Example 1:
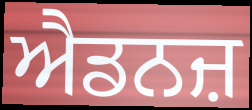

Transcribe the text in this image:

ਐਡਨਜ਼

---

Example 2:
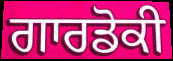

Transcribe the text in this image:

ਗਾਰਡੋਕੀ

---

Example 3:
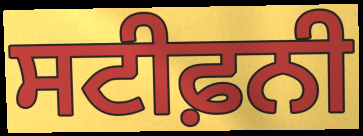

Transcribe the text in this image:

ਸਟੀਫ਼ਨੀ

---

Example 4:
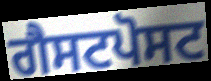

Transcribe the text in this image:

ਗੈਸਟਪੋਸਟ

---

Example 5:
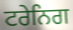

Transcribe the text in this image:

ਟਰੇਨਿਗ